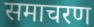
समाचरण